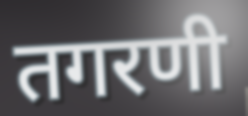
तगरणी